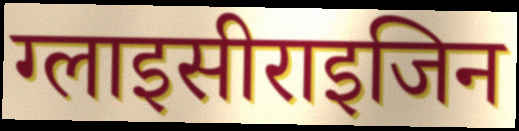
ग्लाइसीराइजिन